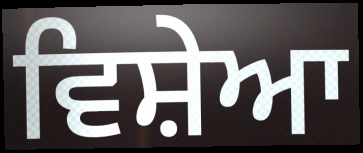
ਵਿਸ਼ੇਆ